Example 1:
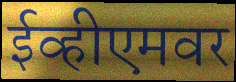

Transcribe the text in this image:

ईव्हीएमवर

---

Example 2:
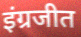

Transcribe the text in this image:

इंग्रजीत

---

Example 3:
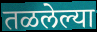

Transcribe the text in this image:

तळलेल्या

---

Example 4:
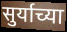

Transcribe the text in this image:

सुर्याच्या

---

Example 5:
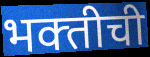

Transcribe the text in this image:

भक्‍तीची